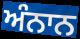
ਅੰਨਾਨ